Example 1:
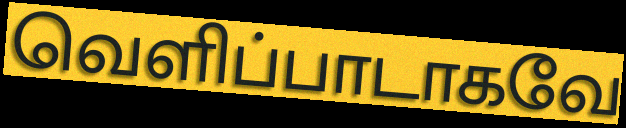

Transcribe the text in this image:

வெளிப்பாடாகவே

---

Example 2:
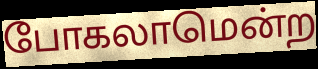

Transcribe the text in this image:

போகலாமென்ற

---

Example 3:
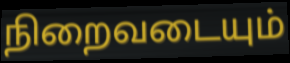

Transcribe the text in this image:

நிறைவடையும்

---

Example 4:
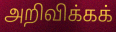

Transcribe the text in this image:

அறிவிக்கக்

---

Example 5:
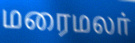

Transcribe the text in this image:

மரைமலர்